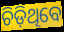
ଚିଡ଼ିଥିବେ